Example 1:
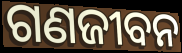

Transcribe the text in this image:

ଗଣଜୀବନ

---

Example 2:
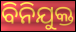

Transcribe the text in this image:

ବିନିଯୁକ୍ତ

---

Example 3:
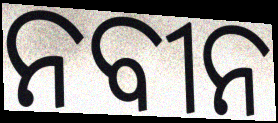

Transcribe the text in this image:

ନବୀନ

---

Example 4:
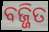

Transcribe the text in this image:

ବଜ୍ଜିତ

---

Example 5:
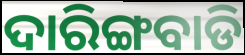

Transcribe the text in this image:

ଦାରିଙ୍ଗବାଡି